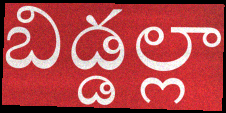
బిడ్డల్లా